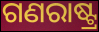
ଗଣରାଷ୍ଟ୍ର